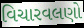
વિચારવલણો